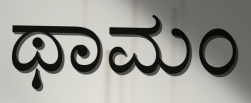
ಥಾಮಂ